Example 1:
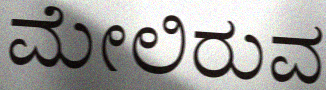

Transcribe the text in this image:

ಮೇಲಿರುವ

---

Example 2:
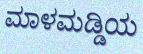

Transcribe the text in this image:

ಮಾಳಮಡ್ಡಿಯ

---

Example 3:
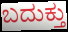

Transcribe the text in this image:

ಬದುಕ್ತು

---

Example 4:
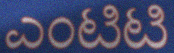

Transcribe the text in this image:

ಎಂಟಿಟಿ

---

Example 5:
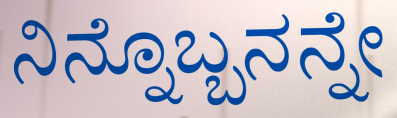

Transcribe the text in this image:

ನಿನ್ನೊಬ್ಬನನ್ನೇ